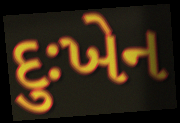
દુઃખેન